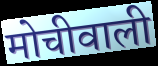
मोचीवाली